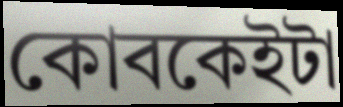
কোবকেইটা